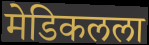
मेडिकलला